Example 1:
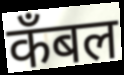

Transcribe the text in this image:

कँबल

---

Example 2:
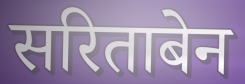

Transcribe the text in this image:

सरिताबेन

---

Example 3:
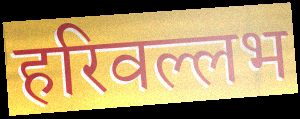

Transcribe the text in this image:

हरिवल्लभ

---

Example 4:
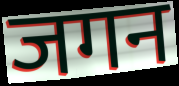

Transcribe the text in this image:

जगन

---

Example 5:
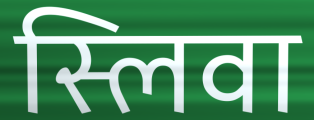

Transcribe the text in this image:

स्लिवा